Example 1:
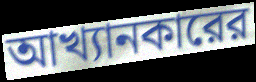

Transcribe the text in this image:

আখ্যানকারের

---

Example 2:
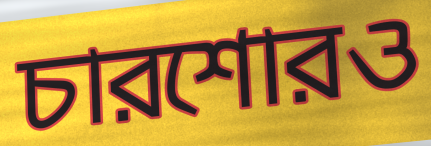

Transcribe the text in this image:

চারশোরও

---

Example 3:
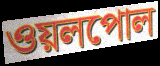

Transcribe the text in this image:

ওয়লপোল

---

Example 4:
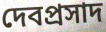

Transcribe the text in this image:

দেবপ্রসাদ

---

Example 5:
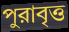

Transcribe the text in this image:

পুরাবৃত্ত